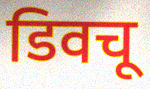
डिवचू